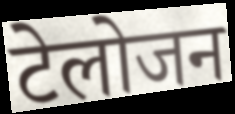
टेलोजन